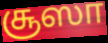
சூஸா